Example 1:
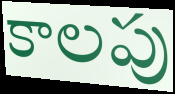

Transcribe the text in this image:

కాలపు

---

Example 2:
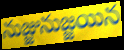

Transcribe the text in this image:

నుజ్జునుజ్జయిన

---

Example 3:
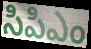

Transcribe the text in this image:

సిపిఎం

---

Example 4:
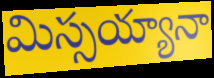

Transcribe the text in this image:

మిస్సయ్యానా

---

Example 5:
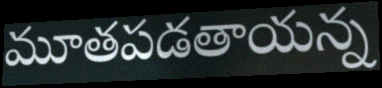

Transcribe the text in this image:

మూతపడతాయన్న